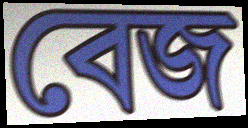
বেজ